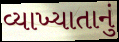
વ્યાખ્યાતાનું